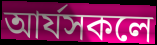
আৰ্যসকলে